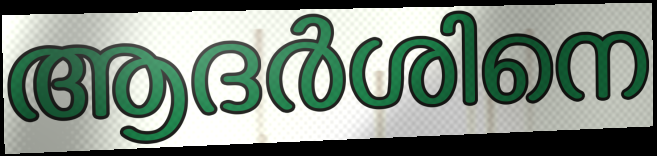
ആദർശിനെ